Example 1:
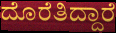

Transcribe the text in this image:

ದೊರೆತಿದ್ದಾರೆ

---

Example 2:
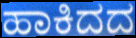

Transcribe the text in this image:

ಹಾಕಿದದ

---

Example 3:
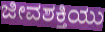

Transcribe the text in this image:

ಜೀವಶಕ್ತಿಯು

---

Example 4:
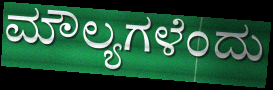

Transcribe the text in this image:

ಮೌಲ್ಯಗಳೆಂದು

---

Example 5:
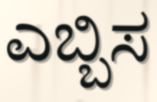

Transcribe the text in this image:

ಎಬ್ಬಿಸ